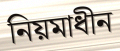
নিয়মাধীন